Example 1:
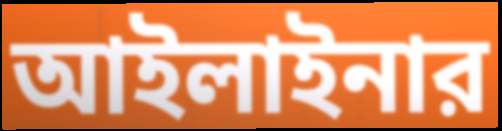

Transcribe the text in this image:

আইলাইনার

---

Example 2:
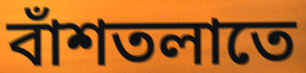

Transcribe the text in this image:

বাঁশতলাতে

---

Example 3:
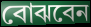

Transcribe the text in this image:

বোঝবেন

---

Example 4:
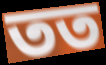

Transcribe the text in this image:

তত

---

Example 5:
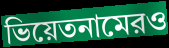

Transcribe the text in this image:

ভিয়েতনামেরও